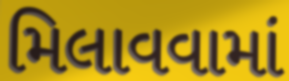
મિલાવવામાં